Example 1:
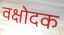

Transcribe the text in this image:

वक्षोदक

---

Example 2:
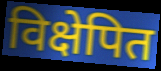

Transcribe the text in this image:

विक्षेपित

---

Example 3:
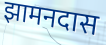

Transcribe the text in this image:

झामनदास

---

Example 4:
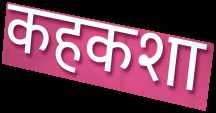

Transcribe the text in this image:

कहकशा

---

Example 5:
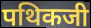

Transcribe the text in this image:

पथिकजी